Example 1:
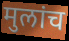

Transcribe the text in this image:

मुलांच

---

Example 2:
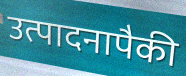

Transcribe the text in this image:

उत्पादनापैकी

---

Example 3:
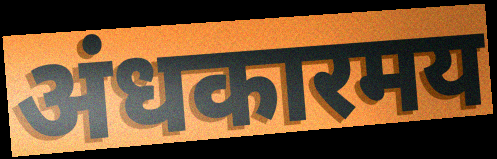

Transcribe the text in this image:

अंधकारमय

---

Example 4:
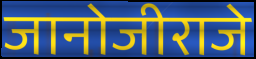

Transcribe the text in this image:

जानोजीराजे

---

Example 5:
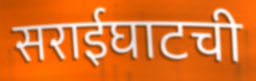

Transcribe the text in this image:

सराईघाटची